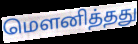
மௌனித்தது